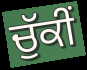
ਚੁੱਕੀਂ